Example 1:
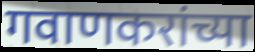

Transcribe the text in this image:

गवाणकरांच्या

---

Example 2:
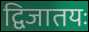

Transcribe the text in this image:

द्विजातयः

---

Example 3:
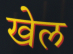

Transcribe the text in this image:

खेल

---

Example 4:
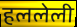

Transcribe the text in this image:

हललेली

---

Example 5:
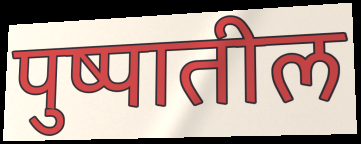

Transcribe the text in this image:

पुष्पातील